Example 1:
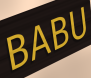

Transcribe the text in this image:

BABU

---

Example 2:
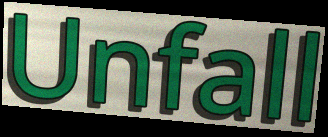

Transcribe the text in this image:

Unfall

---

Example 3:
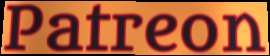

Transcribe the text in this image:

Patreon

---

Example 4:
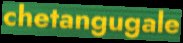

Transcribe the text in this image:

chetangugale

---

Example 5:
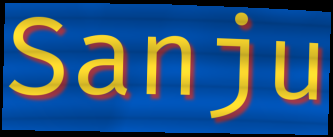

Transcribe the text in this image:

Sanju